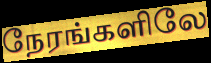
நேரங்களிலே